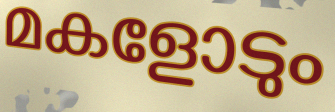
മകളോടും